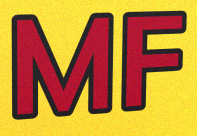
MF